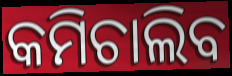
କମିଚାଲିବ